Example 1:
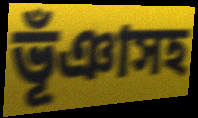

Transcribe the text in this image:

ভূঁঞাসহ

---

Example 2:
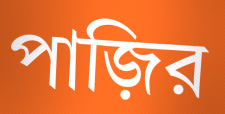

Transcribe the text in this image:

পাজ়ির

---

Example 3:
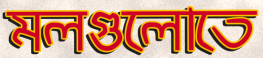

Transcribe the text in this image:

মলগুলোতে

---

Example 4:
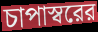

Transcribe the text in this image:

চাপাস্বরের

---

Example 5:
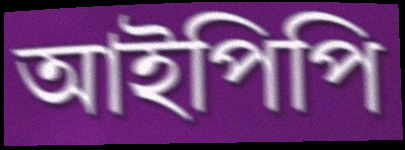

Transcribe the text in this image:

আইপিপি